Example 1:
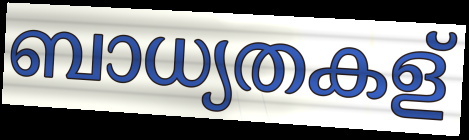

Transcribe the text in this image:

ബാധ്യതകള്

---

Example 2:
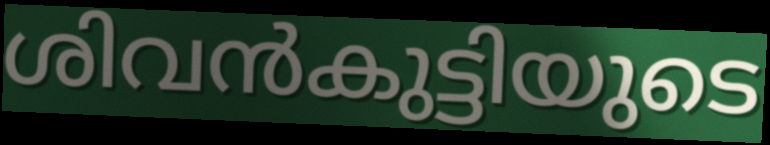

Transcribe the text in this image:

ശിവൻകുട്ടിയുടെ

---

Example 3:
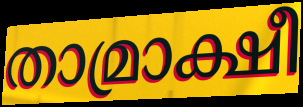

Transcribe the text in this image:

താമ്രാക്ഷീ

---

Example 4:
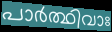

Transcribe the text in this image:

പാർത്ഥിവാഃ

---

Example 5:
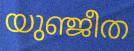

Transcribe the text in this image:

യുഞ്ജീത